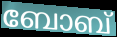
ബോബ്